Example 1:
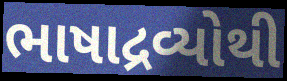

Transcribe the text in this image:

ભાષાદ્રવ્યોથી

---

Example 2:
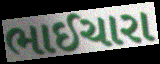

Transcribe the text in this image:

ભાઈચારા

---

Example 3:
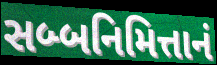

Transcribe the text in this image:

સબ્બનિમિત્તાનં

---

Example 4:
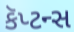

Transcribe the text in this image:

કૅપ્ટન્સ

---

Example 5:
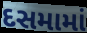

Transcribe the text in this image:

દસમામાં